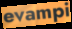
evampi